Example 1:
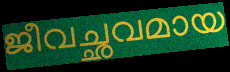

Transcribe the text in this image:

ജീവച്ഛവമായ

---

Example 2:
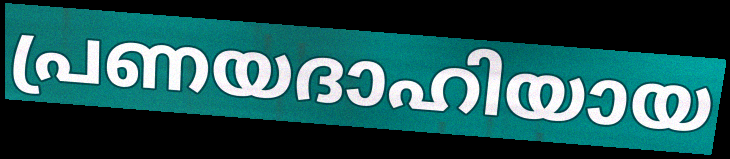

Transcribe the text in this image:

പ്രണയദാഹിയായ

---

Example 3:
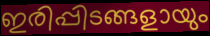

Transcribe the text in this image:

ഇരിപ്പിടങ്ങളായും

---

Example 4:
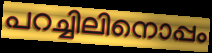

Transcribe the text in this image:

പറച്ചിലിനൊപ്പം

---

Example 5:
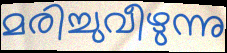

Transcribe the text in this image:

മരിച്ചുവീഴുന്നു